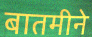
बातमीने